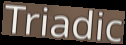
Triadic